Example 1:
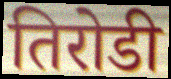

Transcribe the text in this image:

तिरोडी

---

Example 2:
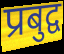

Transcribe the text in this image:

प्रबुद्व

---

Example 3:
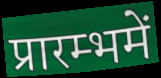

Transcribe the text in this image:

प्रारम्भमें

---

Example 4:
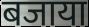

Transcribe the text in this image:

बजाया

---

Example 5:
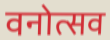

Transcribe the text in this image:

वनोत्सव